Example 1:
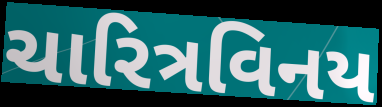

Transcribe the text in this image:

ચારિત્રવિનય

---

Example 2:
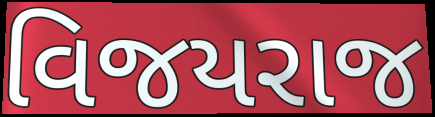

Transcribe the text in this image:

વિજયરાજ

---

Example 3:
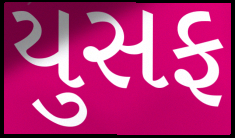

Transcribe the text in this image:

યુસફ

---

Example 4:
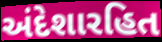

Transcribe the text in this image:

અંદેશારહિત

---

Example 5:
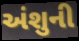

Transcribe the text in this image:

અંશુની